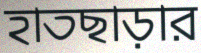
হাতছাড়ার